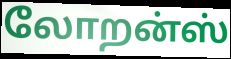
லோறன்ஸ்